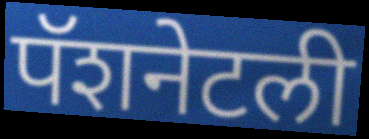
पॅशनेटली